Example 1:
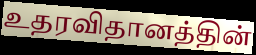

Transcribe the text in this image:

உதரவிதானத்தின்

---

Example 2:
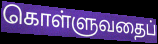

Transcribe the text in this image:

கொள்ளுவதைப்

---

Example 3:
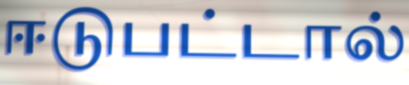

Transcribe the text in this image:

ஈடுபட்டால்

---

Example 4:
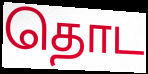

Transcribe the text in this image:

தொட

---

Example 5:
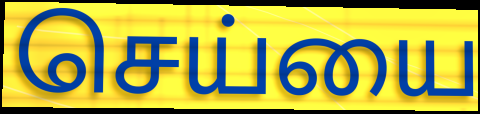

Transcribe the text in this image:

செய்யை